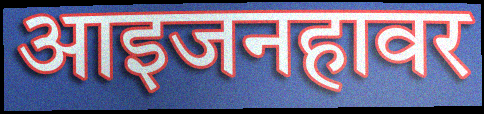
आइजनहावर